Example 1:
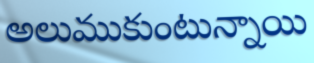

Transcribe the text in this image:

అలుముకుంటున్నాయి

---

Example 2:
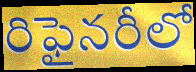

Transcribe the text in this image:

రిఫైనరీలో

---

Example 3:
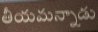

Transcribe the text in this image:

తీయమన్నాడు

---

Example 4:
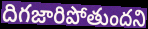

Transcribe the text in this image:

దిగజారిపోతుందని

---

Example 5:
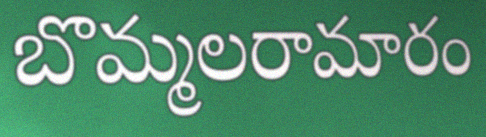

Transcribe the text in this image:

బొమ్మలరామారం